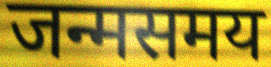
जन्मसमय